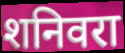
शनिवरा